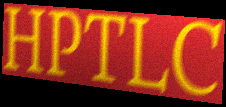
HPTLC